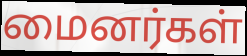
மைனர்கள்